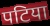
पटिया